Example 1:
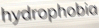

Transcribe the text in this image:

hydrophobia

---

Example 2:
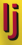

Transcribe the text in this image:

lj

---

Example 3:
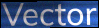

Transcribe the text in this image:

Vector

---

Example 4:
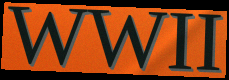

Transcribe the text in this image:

WWII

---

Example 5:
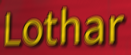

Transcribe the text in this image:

Lothar